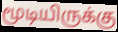
மூடியிருக்கு